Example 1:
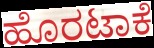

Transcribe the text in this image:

ಹೊರಟಾಕೆ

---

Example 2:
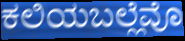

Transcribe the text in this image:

ಕಲಿಯಬಲ್ಲೆವೊ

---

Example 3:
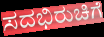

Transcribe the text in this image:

ಸದಭಿರುಚಿಗೆ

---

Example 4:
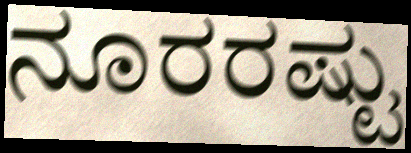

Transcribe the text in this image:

ನೂರರಷ್ಟು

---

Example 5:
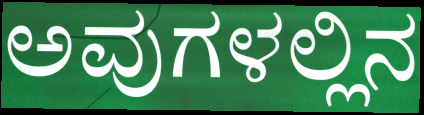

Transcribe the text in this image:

ಅವುಗಳಲ್ಲಿನ